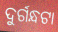
ଦୁର୍ଗନ୍ଧଟା